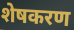
शेषकरण